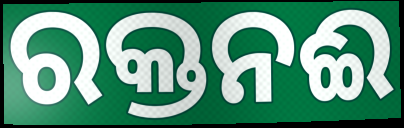
ରକ୍ତନଈ